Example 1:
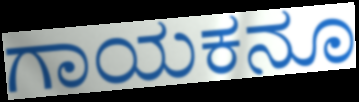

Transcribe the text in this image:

ಗಾಯಕನೂ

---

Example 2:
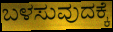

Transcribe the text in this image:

ಬಳಸುವುದಕ್ಕೆ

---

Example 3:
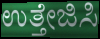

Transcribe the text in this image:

ಉತ್ತೇಜಿಸಿ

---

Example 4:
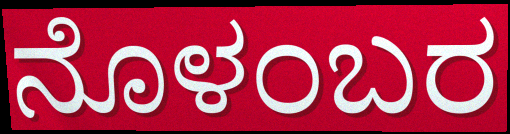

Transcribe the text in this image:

ನೊಳಂಬರ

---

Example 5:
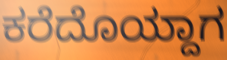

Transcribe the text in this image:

ಕರೆದೊಯ್ದಾಗ